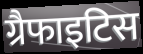
ग्रैफाइटिस